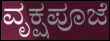
ವೃಕ್ಷಪೂಜೆ